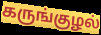
கருங்குழல்